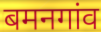
बमनगांव